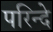
परिन्दे